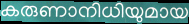
കരുണാനിധിയുമായ